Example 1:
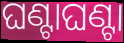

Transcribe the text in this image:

ଘଣ୍ଟାଘଣ୍ଟା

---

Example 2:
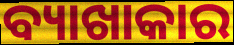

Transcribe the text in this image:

ବ୍ୟାଖାକାର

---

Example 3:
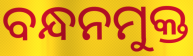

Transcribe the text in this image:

ବନ୍ଧନମୁକ୍ତ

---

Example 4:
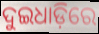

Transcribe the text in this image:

ଦୁଇଧାଡ଼ିରେ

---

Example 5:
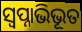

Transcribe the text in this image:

ସ୍ଵପ୍ନାଭିଭୂତ